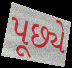
પૂછ્યે